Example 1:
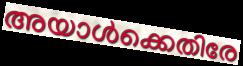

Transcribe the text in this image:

അയാൾക്കെതിരേ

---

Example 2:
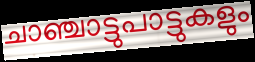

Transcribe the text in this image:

ചാഞ്ചാട്ടുപാട്ടുകളും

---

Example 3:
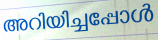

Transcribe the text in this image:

അറിയിച്ചപ്പോൾ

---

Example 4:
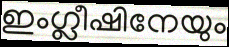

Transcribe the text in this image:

ഇംഗ്ലീഷിനേയും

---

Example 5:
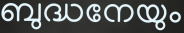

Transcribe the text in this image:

ബുദ്ധനേയും